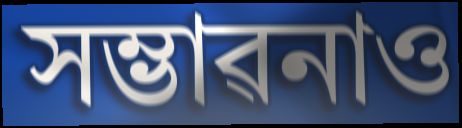
সম্ভাৱনাও